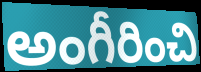
అంగీరించి